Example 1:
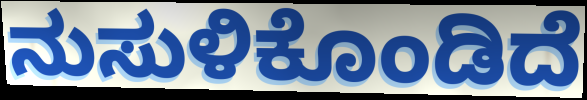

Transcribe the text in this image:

ನುಸುಳಿಕೊಂಡಿದೆ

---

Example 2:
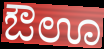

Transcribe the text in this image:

ಔಊ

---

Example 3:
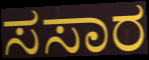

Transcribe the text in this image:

ಸಸಾರ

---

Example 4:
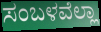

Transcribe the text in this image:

ಸಂಬಳವೆಲ್ಲಾ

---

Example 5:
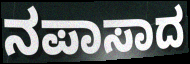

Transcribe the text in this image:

ನಪಾಸಾದ